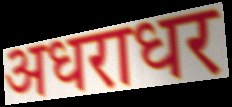
अधराधर